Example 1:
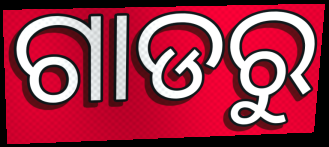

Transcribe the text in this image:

ଗାଡରୁ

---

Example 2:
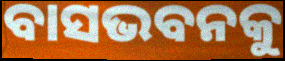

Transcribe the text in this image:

ବାସଭବନକୁ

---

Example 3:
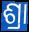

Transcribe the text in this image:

ଶ୍ରା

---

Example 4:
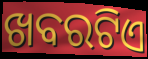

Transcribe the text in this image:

ଖବରଟିଏ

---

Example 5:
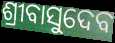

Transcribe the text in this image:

ଶ୍ରୀବାସୁଦେବ